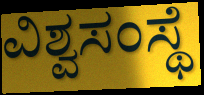
ವಿಶ್ವಸಂಸ್ಥೆ